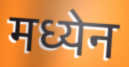
मध्येन